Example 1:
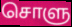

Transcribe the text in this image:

சொளு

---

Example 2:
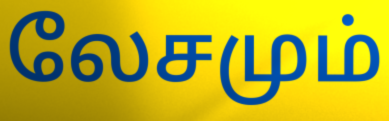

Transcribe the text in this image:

லேசமும்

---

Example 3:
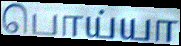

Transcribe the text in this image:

பொய்யா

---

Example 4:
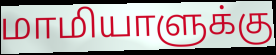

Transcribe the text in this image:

மாமியாளுக்கு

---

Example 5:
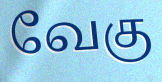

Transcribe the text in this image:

வேகு